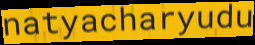
natyacharyudu